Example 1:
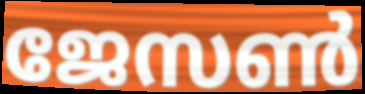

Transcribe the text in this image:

ജേസൺ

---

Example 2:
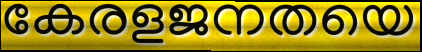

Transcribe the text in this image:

കേരളജനതയെ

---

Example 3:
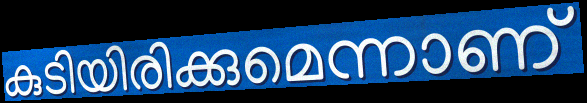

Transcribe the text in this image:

കുടിയിരിക്കുമെന്നാണ്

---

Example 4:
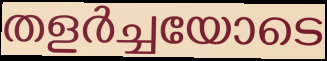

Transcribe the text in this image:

തളർച്ചയോടെ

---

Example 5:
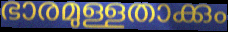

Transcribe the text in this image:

ഭാരമുള്ളതാക്കും